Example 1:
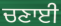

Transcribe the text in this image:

ਚਣਾਈ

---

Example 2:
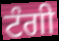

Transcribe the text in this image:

ਟੰਗੀ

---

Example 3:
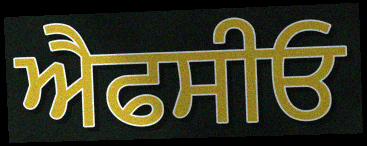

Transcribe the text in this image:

ਐਫਸੀਓ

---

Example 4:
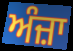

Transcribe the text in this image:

ਅੰਜ਼ਾ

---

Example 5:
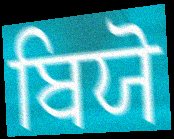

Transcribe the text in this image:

ਬਿਯੋ